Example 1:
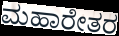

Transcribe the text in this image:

ಮಹಾರೇತರ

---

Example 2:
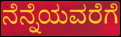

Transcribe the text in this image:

ನೆನ್ನೆಯವರೆಗೆ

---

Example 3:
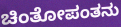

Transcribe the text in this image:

ಚಿಂತೋಪಂತನು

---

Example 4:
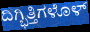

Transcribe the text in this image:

ದಿಗ್ಭಿತ್ತಿಗಳೊಳ್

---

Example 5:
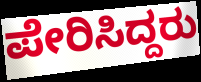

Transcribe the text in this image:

ಪೇರಿಸಿದ್ದರು